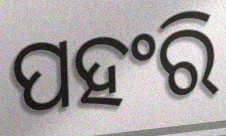
ପହଂରି